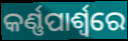
କର୍ଣ୍ଣପାର୍ଶ୍ୱରେ